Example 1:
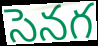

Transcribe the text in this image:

సెనగ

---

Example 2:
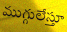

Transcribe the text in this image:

ముగ్గులేస్తూ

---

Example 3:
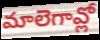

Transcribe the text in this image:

మాలెగావ్లో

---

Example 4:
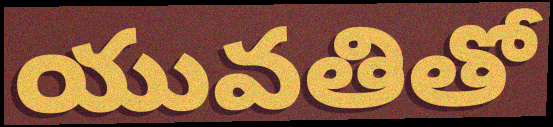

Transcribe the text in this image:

యువతితో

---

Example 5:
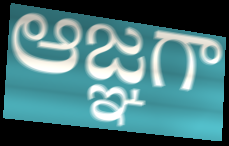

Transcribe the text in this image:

ఆజ్ఞగా